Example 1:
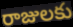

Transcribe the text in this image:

రాజులకు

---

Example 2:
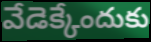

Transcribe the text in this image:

వేడెక్కేందుకు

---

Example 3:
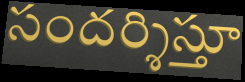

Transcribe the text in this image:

సందర్శిస్తూ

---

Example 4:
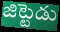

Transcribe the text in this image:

జిట్టెడు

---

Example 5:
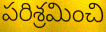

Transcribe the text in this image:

పరిశ్రమించి